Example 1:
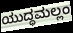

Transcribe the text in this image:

ಯುದ್ಧಮಲ್ಲಂ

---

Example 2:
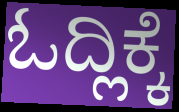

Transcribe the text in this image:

ಓದ್ಲಿಕ್ಕೆ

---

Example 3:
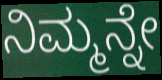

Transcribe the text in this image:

ನಿಮ್ಮನ್ನೇ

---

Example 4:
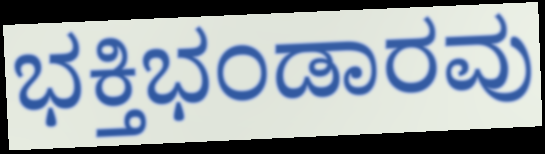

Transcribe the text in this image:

ಭಕ್ತಿಭಂಡಾರವು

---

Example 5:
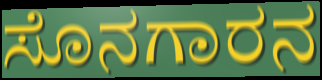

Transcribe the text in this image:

ಸೊನಗಾರನ